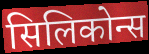
सिलिकोन्स